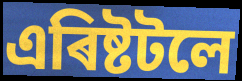
এৰিষ্টটলে